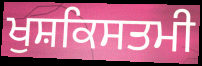
ਖੁਸ਼ਕਿਸਤਮੀ